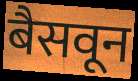
बैसवून